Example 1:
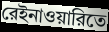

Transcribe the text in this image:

রেইনাওয়ারিতে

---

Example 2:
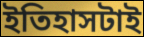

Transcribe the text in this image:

ইতিহাসটাই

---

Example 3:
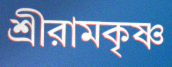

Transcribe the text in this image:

শ্রীরামকৃষ্ণ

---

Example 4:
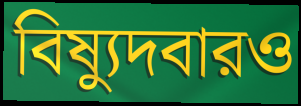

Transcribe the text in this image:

বিষ্যুদবারও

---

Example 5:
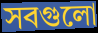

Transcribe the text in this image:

সবগুলো